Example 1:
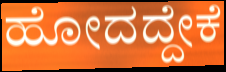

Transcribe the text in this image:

ಹೋದದ್ದೇಕೆ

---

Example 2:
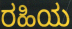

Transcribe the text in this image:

ರಹಿಯ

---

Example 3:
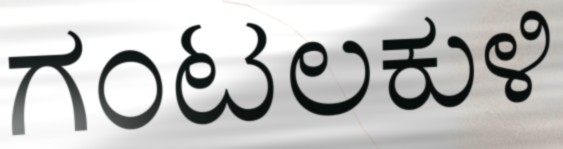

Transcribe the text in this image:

ಗಂಟಲಕುಳಿ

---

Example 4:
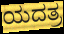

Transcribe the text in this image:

ಯದತ್ರ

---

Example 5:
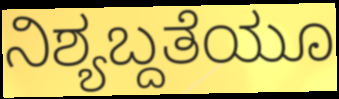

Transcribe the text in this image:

ನಿಶ್ಯಬ್ದತೆಯೂ